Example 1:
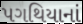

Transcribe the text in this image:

પગથિયાનાં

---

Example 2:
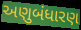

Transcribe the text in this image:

અણુબંધારણ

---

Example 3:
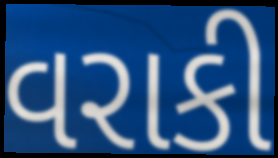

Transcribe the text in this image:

વરાકી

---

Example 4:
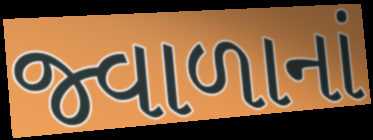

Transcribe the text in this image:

જ્વાળાનાં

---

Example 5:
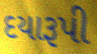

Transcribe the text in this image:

દયારૂપી